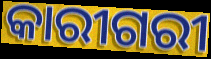
କାରୀଗରୀ